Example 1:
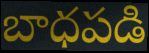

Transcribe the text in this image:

బాధపడి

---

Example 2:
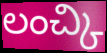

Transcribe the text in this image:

లంచ్కి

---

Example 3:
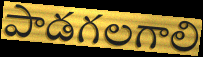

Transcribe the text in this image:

పాడగలగాలి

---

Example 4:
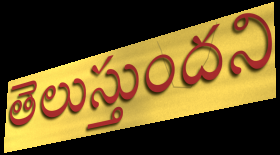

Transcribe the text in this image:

తెలుస్తుందని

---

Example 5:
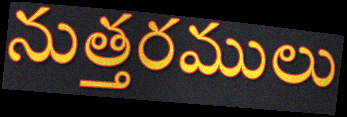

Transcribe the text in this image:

నుత్తరములు